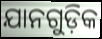
ଯାନଗୁଡ଼ିକ